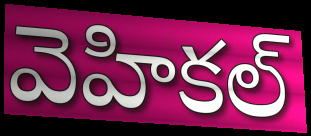
వెహికల్